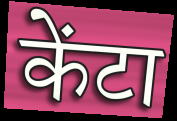
केंटा